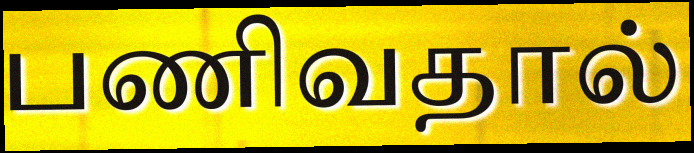
பணிவதால்